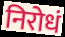
निरोधं